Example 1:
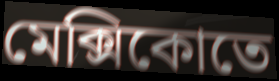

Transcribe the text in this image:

মেক্সিকোতে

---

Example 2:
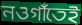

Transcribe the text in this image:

নওগাঁতেই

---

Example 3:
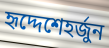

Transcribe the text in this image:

হৃদ্দেশেহর্জুন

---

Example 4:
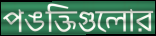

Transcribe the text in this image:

পঙক্তিগুলোর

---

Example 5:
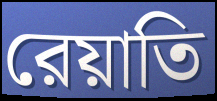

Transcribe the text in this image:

রেয়াতি